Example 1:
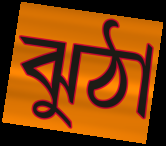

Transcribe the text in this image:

ঝুঠা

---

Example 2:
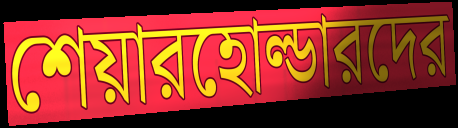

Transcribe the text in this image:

শেয়ারহোল্ডারদের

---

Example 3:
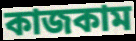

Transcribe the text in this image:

কাজকাম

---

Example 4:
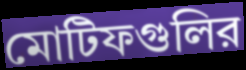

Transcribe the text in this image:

মোটিফগুলির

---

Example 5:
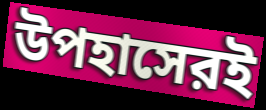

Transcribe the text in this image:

উপহাসেরই